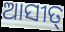
ଆସୀତ୍